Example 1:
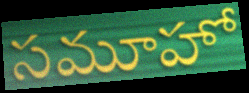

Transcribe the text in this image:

సమూహో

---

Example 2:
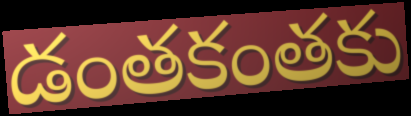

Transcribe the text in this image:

డంతకంతకు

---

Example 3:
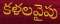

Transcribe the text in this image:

కళలవైపు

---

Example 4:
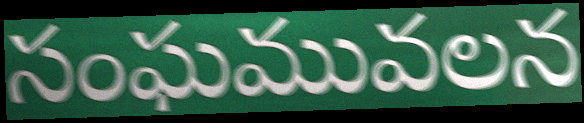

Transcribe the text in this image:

సంఘమువలన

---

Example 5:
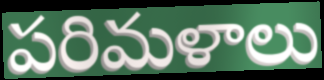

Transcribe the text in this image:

పరిమళాలు